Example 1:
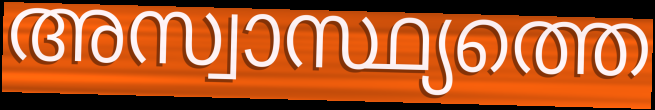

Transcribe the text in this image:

അസ്വാസ്ഥ്യത്തെ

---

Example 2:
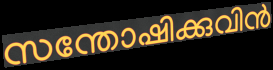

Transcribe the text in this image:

സന്തോഷിക്കുവിൻ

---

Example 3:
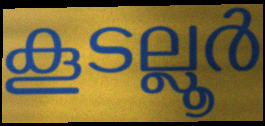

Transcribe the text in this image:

കൂടല്ലൂർ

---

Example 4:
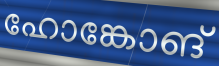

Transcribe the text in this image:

ഹോങ്കോങ്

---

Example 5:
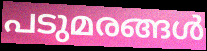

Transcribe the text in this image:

പടുമരങ്ങൾ